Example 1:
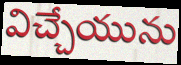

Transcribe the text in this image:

విచ్చేయును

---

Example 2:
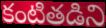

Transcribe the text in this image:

కంటితడిని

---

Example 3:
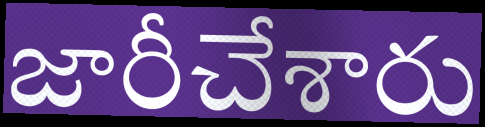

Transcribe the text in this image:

జారీచేశారు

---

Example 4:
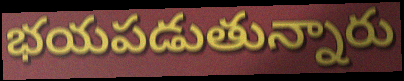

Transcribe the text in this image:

భయపడుతున్నారు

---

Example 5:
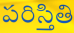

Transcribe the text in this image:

పరిస్తితి